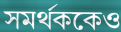
সমর্থককেও